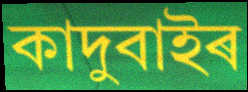
কাদুবাইৰ